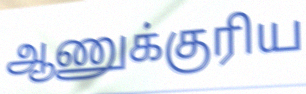
ஆணுக்குரிய